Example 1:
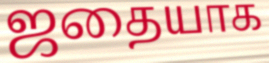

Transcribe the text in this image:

ஜதையாக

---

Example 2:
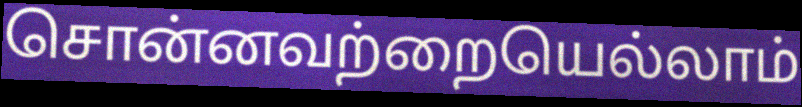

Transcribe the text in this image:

சொன்னவற்றையெல்லாம்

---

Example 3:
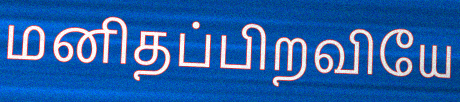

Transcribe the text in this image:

மனிதப்பிறவியே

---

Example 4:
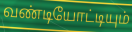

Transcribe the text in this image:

வண்டியோட்டியும்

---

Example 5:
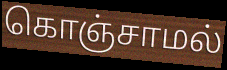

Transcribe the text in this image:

கொஞ்சாமல்